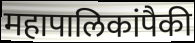
महापालिकांपैकी